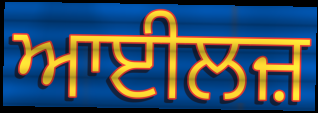
ਆਈਲਜ਼